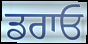
ਡਰਾਓ